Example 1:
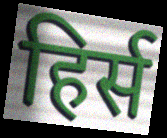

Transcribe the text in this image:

हिर्स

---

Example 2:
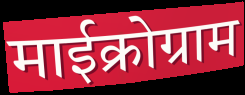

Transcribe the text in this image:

माईक्रोग्राम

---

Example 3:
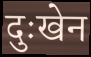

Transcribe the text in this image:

दुःखेन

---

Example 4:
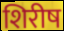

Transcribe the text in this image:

शिरीष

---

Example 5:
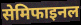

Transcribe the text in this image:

सेमिफाइनल